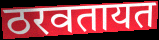
ठरवतायत